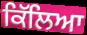
ਕਿੱਲਿਆ